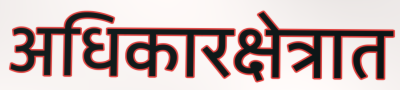
अधिकारक्षेत्रात